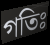
গতিঃ